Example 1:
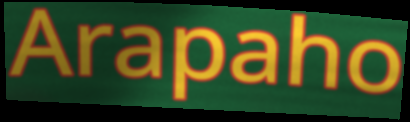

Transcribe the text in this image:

Arapaho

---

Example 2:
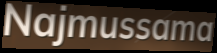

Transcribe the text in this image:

Najmussama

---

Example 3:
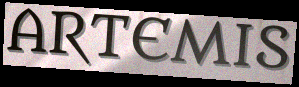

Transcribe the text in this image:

ARTEMIS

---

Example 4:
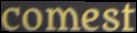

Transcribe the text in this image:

comest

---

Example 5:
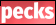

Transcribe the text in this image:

pecks